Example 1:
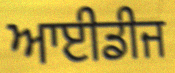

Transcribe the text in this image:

ਆਈਡੀਜ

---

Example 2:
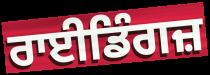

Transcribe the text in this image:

ਰਾਈਡਿੰਗਜ਼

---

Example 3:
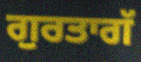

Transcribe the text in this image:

ਗੁਰਤਾਗੱ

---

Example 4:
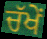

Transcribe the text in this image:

ਚੱਖੇਂ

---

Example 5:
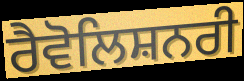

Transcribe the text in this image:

ਰੈਵੋਲਿਸ਼ਨਰੀ